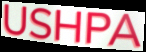
USHPA